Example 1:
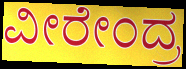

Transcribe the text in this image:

ವೀರೇಂದ್ರ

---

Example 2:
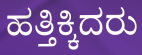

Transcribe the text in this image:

ಹತ್ತಿಕ್ಕಿದರು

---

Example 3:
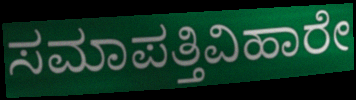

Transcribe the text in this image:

ಸಮಾಪತ್ತಿವಿಹಾರೇ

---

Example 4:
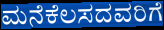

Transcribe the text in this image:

ಮನೆಕೆಲಸದವರಿಗೆ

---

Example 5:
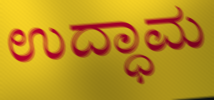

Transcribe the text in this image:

ಉದ್ಧಾಮ